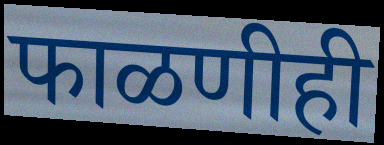
फाळणीही